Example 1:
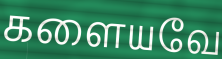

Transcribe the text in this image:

களையவே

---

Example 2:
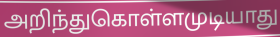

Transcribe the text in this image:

அறிந்துகொள்ளமுடியாது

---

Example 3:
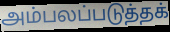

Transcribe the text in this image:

அம்பலப்படுத்தக்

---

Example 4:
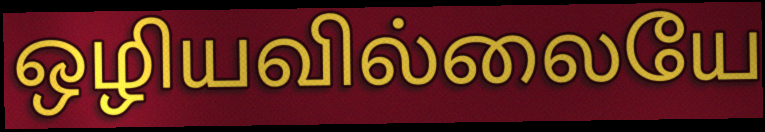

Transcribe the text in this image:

ஒழியவில்லையே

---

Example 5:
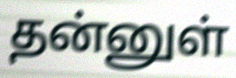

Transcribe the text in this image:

தன்னுள்